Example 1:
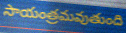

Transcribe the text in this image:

సాయంత్రమవుతుంది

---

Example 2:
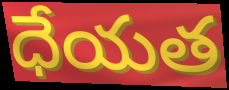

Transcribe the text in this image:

ధేయత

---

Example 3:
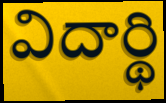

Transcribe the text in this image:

విదార్థి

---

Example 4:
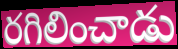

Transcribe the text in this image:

రగిలించాడు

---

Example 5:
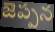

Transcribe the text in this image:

జెప్పన